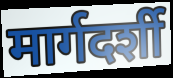
मार्गदर्शी